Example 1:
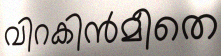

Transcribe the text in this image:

വിറകിൻമീതെ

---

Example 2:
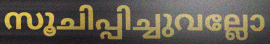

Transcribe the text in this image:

സൂചിപ്പിച്ചുവല്ലോ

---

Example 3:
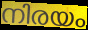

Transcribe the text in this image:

നിരയം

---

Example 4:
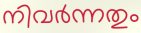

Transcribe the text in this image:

നിവർന്നതും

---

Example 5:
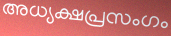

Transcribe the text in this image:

അധ്യക്ഷപ്രസംഗം